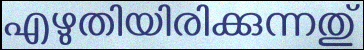
എഴുതിയിരിക്കുന്നതു്